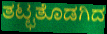
ತಟ್ಟತೊಡಗಿದ